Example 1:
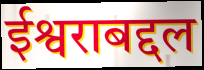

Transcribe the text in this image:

ईश्वराबद्दल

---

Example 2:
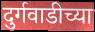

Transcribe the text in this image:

दुर्गवाडीच्या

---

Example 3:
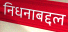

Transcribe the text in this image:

निधनाबद्दल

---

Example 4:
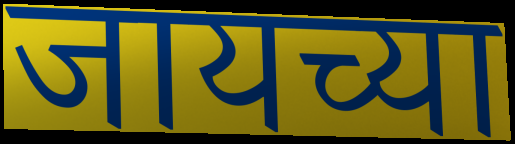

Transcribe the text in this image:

जायच्या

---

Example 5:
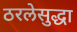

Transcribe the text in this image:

ठरलेसुद्धा